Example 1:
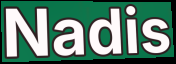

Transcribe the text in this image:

Nadis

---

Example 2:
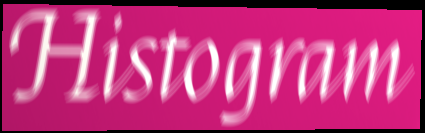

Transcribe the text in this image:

Histogram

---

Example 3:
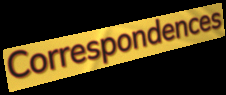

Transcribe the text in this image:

Correspondences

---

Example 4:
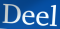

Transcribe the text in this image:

Deel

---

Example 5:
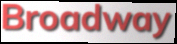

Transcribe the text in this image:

Broadway